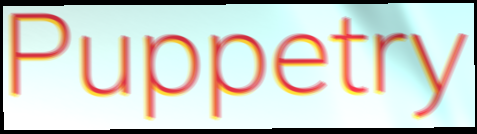
Puppetry